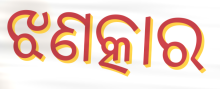
ଝଣତ୍କାର